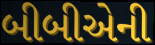
બીબીએની